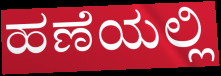
ಹಣೆಯಲ್ಲಿ